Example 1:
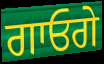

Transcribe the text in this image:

ਗਾਓਗੇ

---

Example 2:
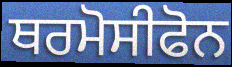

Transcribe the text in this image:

ਥਰਮੋਸੀਫੋਨ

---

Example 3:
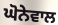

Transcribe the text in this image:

ਘੋਨੇਵਾਲ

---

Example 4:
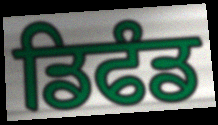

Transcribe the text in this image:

ਡਿਫੰਡ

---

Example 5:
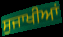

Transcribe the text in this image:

ਸੁਜਾਖੀਆਂ